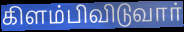
கிளம்பிவிடுவார்